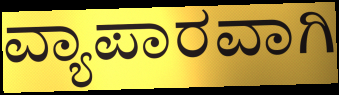
ವ್ಯಾಪಾರವಾಗಿ